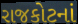
રાજકોટનાં